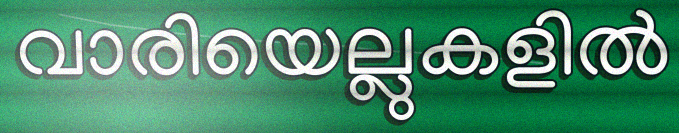
വാരിയെല്ലുകളിൽ